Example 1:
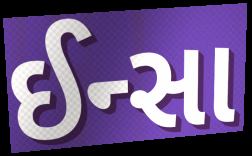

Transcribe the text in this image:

ઈન્સા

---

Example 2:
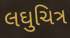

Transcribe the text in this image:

લઘુચિત્ર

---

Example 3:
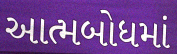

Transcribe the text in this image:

આત્મબોધમાં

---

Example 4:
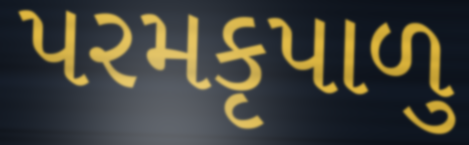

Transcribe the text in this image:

પરમકૃપાળુ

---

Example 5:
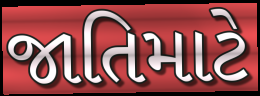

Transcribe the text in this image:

જાતિમાટે